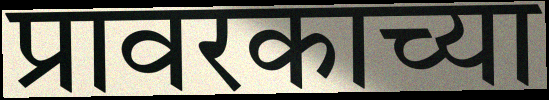
प्रावरकाच्या